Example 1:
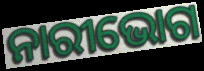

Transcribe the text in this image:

ନାରୀଭୋଗ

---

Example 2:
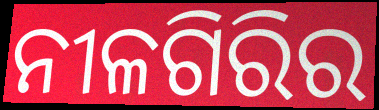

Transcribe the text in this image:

ନୀଳଗିରିର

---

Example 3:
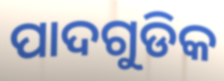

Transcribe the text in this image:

ପାଦଗୁଡିକ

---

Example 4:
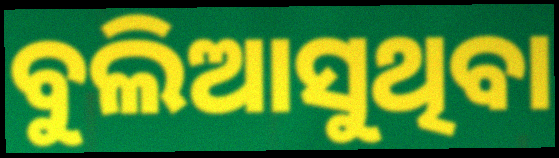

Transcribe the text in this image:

ବୁଲିଆସୁଥିବା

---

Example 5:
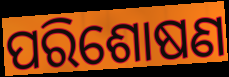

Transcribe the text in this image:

ପରିଶୋଷଣ